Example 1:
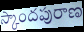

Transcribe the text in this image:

స్కాందపురాణ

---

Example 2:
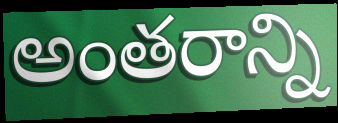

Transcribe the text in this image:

అంతరాన్ని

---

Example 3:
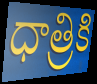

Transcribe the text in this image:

ధాత్రికి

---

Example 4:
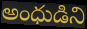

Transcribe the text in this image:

అంధుడిని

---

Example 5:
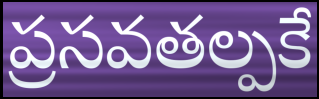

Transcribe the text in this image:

ప్రసవతల్పకే